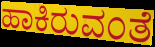
ಹಾಕಿರುವಂತೆ